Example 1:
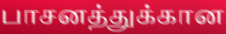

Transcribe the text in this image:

பாசனத்துக்கான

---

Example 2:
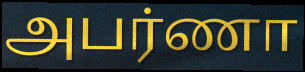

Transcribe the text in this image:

அபர்ணா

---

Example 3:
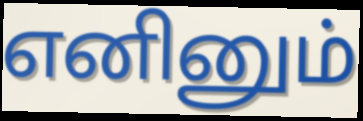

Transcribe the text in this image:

எனினும்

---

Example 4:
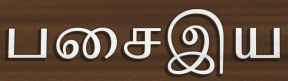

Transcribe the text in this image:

பசைஇய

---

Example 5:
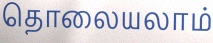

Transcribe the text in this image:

தொலையலாம்